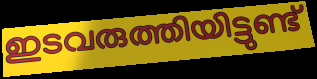
ഇടവരുത്തിയിട്ടുണ്ട്